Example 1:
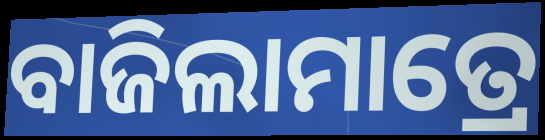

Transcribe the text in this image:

ବାଜିଲାମାତ୍ରେ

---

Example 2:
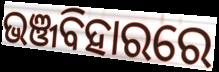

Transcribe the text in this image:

ଭଞ୍ଜବିହାରରେ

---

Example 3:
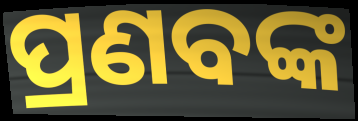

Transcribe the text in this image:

ପ୍ରଣବଙ୍କ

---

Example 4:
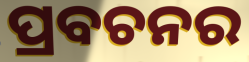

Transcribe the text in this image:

ପ୍ରବଚନର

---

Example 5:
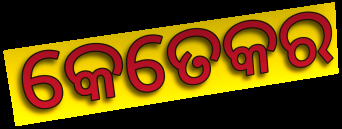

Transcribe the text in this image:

କେତେକର